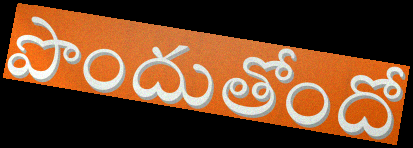
పొందుతోందో